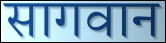
सागवान